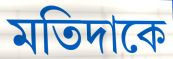
মতিদাকে